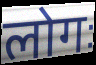
लोगः